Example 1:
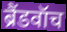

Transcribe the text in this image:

ब्रैंडवॉच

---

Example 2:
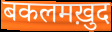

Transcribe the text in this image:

बकलमख़ुद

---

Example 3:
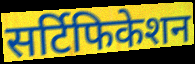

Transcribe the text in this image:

सर्टिफिकेशन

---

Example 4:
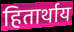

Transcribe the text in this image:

हितार्थाय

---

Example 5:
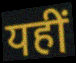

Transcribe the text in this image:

यहीं